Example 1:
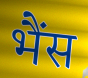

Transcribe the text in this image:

भैंस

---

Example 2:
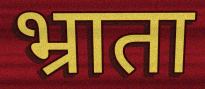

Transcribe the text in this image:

भ्राता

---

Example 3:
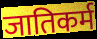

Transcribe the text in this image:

जातिकर्म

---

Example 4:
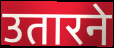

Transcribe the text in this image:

उतारने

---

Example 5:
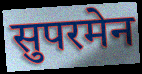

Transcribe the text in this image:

सुपरमेन